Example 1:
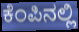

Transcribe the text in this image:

ಕೆಂಪಿನಲ್ಲಿ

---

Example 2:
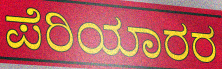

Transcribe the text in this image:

ಪೆರಿಯಾರರ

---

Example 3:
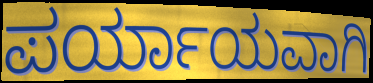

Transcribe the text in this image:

ಪರ್ಯಾಯವಾಗಿ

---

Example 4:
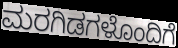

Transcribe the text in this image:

ಮರಗಿಡಗಳೊಂದಿಗೆ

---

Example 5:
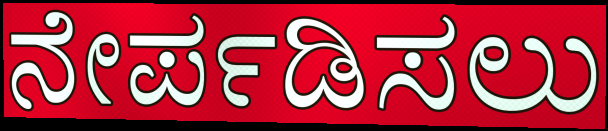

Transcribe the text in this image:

ನೇರ್ಪಡಿಸಲು